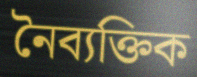
নৈব্যক্তিক